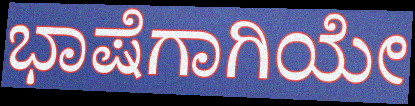
ಭಾಷೆಗಾಗಿಯೇ